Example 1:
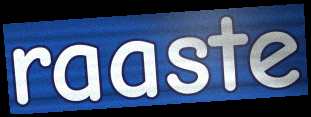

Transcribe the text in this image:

raaste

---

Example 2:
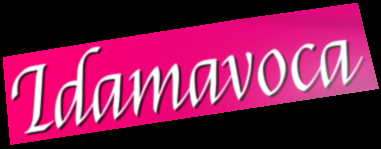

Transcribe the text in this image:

Idamavoca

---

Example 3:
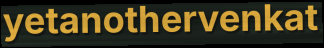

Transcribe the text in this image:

yetanothervenkat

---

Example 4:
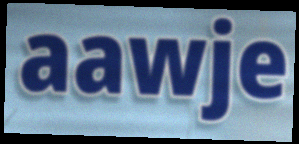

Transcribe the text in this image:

aawje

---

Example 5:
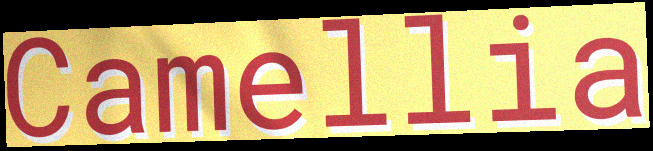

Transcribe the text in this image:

Camellia